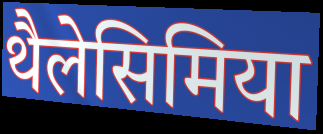
थैलेसिमिया